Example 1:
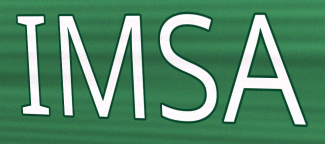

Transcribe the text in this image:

IMSA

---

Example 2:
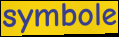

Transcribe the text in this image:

symbole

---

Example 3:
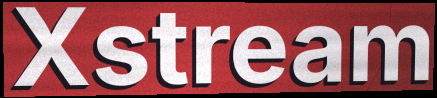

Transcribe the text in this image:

Xstream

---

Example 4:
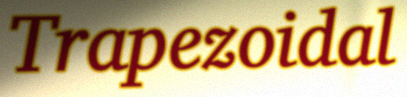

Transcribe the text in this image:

Trapezoidal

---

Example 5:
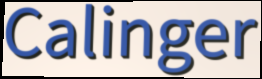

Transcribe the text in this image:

Calinger